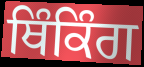
ਥਿੰਕਿੰਗ